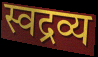
स्वद्रव्य